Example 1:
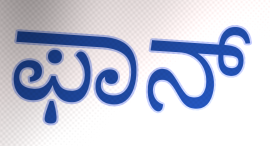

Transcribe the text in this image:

ಫಾನ್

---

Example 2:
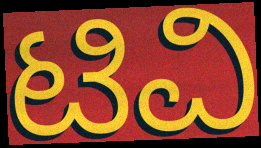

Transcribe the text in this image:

ಟಿವಿ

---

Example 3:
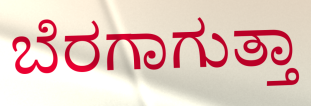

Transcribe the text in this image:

ಬೆರಗಾಗುತ್ತಾ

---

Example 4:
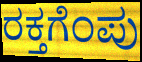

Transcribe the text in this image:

ರಕ್ತಗೆಂಪು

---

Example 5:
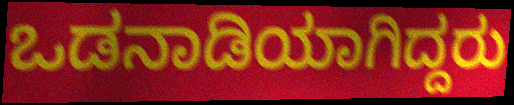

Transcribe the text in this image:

ಒಡನಾಡಿಯಾಗಿದ್ದರು